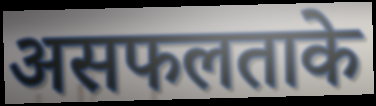
असफलताके